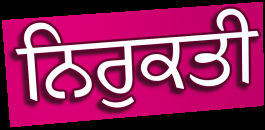
ਨਿਰੁਕਤੀ